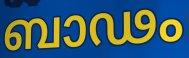
ബാഢം